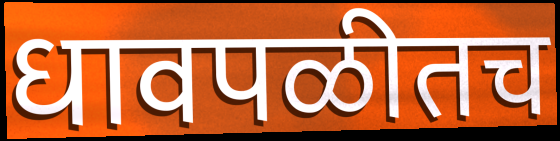
धावपळीतच